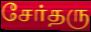
சேர்தரு